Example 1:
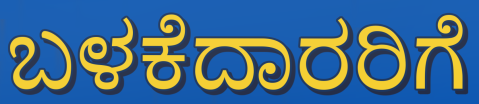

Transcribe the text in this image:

ಬಳಕೆದಾರರಿಗೆ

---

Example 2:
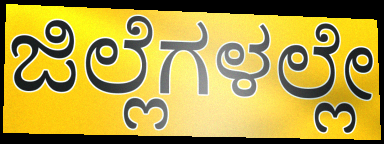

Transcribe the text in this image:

ಜಿಲ್ಲೆಗಳಲ್ಲೇ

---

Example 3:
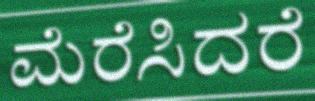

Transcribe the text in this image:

ಮೆರೆಸಿದರೆ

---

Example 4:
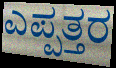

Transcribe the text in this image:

ಎಪ್ಪತ್ತರ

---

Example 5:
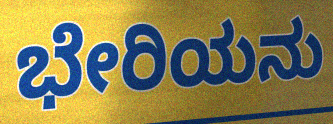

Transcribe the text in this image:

ಭೇರಿಯನು